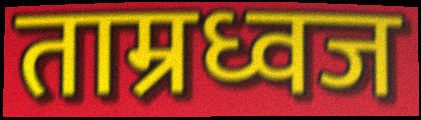
ताम्रध्वज